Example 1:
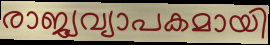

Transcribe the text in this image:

രാജ്യവ്യാപകമായി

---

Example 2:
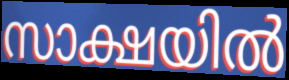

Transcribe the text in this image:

സാക്ഷയിൽ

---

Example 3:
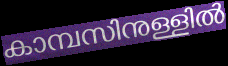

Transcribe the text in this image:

കാമ്പസിനുള്ളിൽ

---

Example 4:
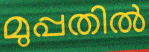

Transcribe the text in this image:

മുപ്പതിൽ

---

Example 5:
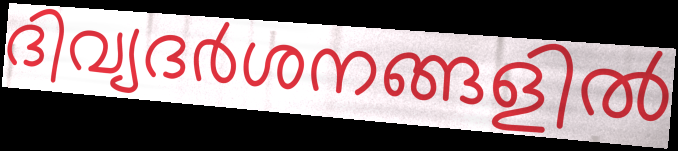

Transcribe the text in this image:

ദിവ്യദർശനങ്ങളിൽ